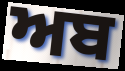
ਅਬ